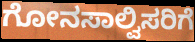
ಗೋನಸಾಲ್ವಿಸರಿಗೆ